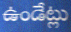
ఉండేట్లు